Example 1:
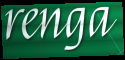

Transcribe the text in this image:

renga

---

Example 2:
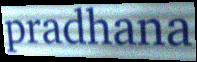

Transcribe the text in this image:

pradhana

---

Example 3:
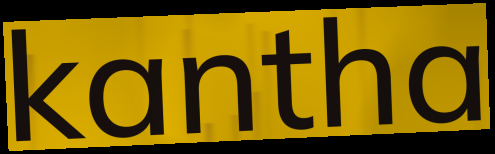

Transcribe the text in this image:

kantha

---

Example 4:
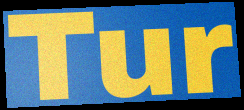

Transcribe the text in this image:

Tur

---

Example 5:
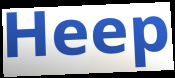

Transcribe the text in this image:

Heep